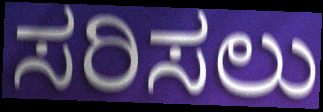
ಸರಿಸಲು